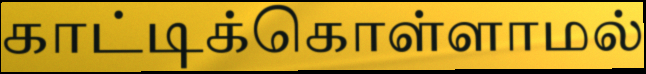
காட்டிக்கொள்ளாமல்